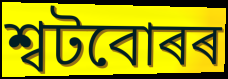
শ্বটবোৰৰ